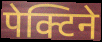
पेक्टिने